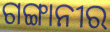
ଗଙ୍ଗାନୀର